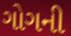
ગોગની